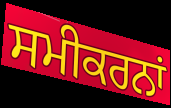
ਸਮੀਕਰਨਾਂ